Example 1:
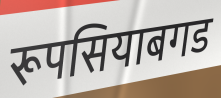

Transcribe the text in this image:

रूपसियाबगड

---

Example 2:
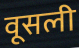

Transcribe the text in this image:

वूसली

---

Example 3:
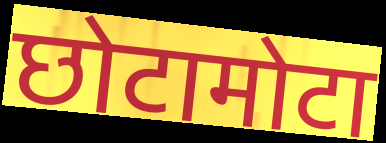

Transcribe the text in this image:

छोटामोटा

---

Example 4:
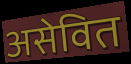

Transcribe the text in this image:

असेवित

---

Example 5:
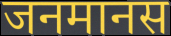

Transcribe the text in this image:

जनमानस